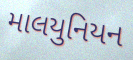
માલયુનિયન